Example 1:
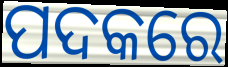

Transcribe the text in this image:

ପଦକରେ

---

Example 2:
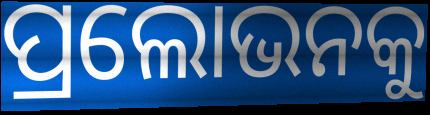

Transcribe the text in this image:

ପ୍ରଲୋଭନକୁ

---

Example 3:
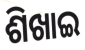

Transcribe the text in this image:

ଶିଖାଇ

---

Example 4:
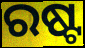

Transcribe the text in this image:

ରଷ୍ଟ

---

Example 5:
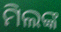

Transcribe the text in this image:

ମିଲଙ୍କ